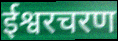
ईश्वरचरण